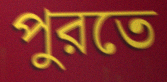
পুরতে